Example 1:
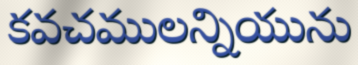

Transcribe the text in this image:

కవచములన్నియును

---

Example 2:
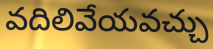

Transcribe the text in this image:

వదిలివేయవచ్చు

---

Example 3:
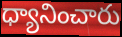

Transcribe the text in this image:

ధ్యానించారు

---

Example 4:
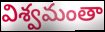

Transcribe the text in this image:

విశ్వమంతా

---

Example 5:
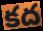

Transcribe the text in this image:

కద